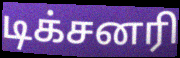
டிக்சனரி